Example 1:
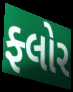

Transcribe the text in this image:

ફ્લોર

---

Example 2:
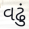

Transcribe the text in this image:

વઢું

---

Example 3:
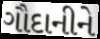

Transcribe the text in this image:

ગૌદાનીને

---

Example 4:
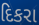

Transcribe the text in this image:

દિકરા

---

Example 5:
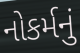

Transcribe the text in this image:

નોકર્મનું